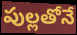
పుల్లతోనే